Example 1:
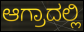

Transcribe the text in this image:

ಆಗ್ರಾದಲ್ಲಿ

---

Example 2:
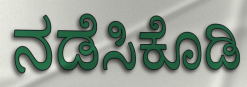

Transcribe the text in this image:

ನಡೆಸಿಕೊಡಿ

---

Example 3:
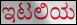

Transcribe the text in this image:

ಇಟಲಿಯ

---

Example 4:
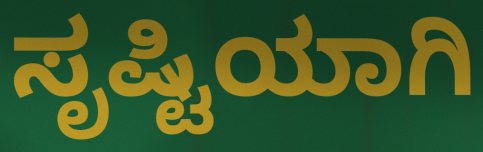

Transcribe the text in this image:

ಸೃಷ್ಟಿಯಾಗಿ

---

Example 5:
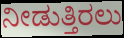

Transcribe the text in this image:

ನೀಡುತ್ತಿರಲು